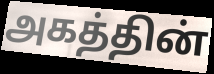
அகத்தின்